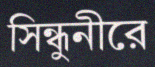
সিন্ধুনীরে